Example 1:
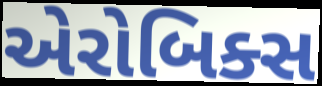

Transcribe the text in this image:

એરોબિક્સ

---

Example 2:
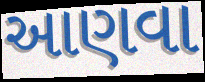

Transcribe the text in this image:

આણવા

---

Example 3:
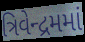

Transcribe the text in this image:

ત્રિવેન્દ્રમમાં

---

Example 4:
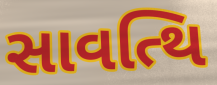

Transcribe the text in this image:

સાવત્થિ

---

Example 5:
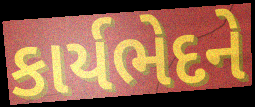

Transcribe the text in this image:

કાર્યભેદને